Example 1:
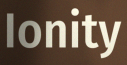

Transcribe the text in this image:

Ionity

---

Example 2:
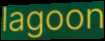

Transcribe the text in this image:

lagoon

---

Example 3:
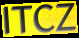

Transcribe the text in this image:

ITCZ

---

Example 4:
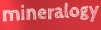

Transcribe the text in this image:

mineralogy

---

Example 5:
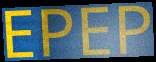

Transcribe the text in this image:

EPEP